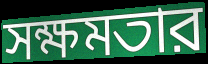
সক্ষমতার